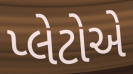
પ્લેટોએ